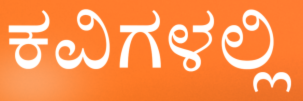
ಕವಿಗಳಲ್ಲಿ